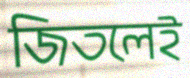
জিতলেই